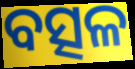
ବତ୍ସଳ